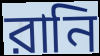
রানি